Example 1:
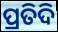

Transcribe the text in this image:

ପ୍ରତିଦି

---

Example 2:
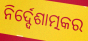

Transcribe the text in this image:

ନିର୍ଦ୍ଦେଶାତ୍ମକର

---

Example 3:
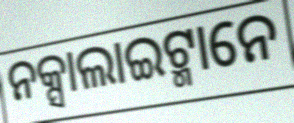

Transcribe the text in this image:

ନକ୍ସାଲାଇଟ୍ମାନେ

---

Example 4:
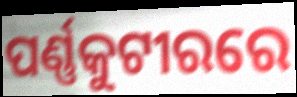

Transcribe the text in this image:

ପର୍ଣ୍ଣକୁଟୀରରେ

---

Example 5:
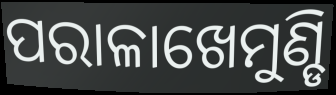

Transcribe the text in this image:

ପରାଳାଖେମୁଣ୍ଡି